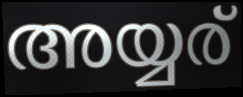
അയ്യര്